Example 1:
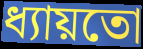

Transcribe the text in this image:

ধ্যায়তো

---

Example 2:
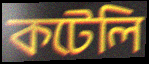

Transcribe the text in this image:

কটেলি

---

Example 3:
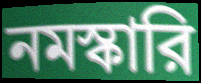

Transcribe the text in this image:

নমস্কারি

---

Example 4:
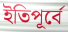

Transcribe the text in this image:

ইতিপূর্বে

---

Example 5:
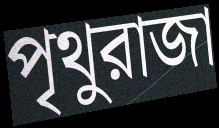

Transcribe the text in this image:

পৃথুরাজা